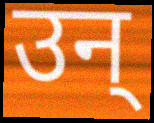
उन्